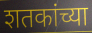
शतकांच्या